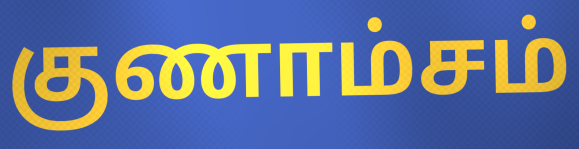
குணாம்சம்